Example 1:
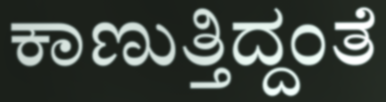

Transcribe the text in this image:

ಕಾಣುತ್ತಿದ್ದಂತೆ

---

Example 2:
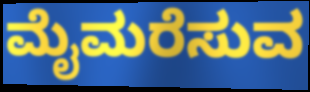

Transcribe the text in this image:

ಮೈಮರೆಸುವ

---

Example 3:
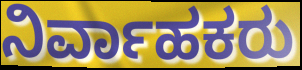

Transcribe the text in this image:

ನಿರ್ವಾಹಕರು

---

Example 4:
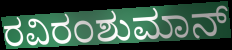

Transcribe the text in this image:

ರವಿರಂಶುಮಾನ್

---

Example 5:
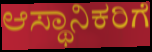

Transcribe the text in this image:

ಆಸ್ಥಾನಿಕರಿಗೆ